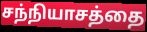
சந்நியாசத்தை